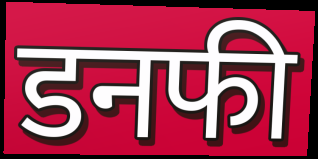
डनफी